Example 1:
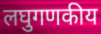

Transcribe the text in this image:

लघुगणकीय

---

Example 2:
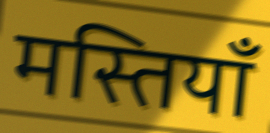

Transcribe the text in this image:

मस्तियाँ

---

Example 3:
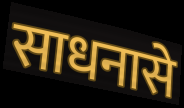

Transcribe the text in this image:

साधनासे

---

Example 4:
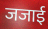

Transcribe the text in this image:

जजाई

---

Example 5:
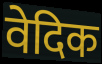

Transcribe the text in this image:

वेदिक